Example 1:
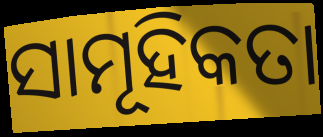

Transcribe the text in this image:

ସାମୂହିକତା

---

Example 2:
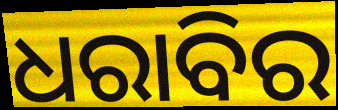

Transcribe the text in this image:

ଧରାବିର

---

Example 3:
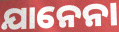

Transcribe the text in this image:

ଯାନେନା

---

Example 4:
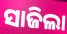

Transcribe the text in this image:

ସାଜିଲା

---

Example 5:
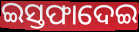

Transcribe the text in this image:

ଇସ୍ତଫାଦେଇ